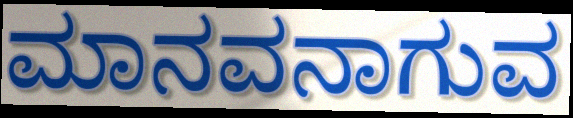
ಮಾನವನಾಗುವ